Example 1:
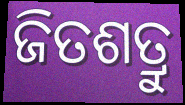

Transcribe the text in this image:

ଜିତଶତ୍ରୁ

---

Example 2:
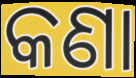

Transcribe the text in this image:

କଣା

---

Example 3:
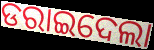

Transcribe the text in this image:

ଡରାଇଦେଲା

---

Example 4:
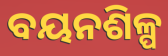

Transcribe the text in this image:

ବୟନଶିଳ୍ପ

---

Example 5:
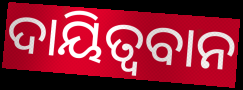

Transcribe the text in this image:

ଦାୟିତ୍ବବାନ